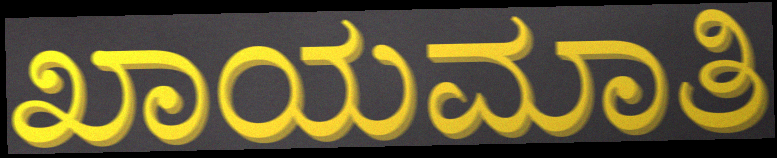
ಖಾಯಮಾತಿ